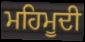
ਮਹਿਮੂਦੀ